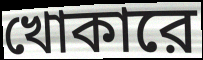
খোকারে